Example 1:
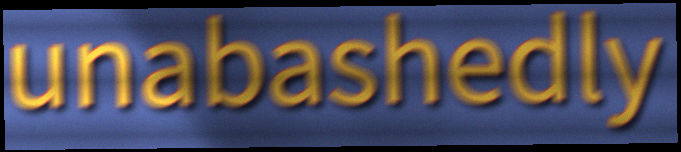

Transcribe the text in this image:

unabashedly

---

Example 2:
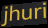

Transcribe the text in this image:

jhuri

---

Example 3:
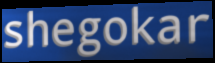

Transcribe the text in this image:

shegokar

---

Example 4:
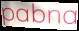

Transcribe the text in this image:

pabna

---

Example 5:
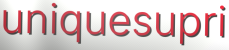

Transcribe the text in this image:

uniquesupri